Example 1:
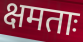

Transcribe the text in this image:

क्षमताः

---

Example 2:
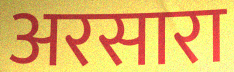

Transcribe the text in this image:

अरसारा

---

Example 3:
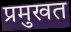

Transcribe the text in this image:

प्रमुखत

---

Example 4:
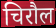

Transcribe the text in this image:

चिरौल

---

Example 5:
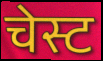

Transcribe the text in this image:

चेस्‍ट